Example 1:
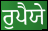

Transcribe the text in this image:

ਰੁਪੈਯੇ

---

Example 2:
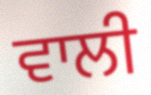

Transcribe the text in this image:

ਵਾਲੀ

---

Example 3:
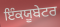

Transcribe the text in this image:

ਇੰਕਯੂਬੇਟਰ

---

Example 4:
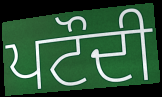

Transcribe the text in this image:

ਪਟੌਦੀ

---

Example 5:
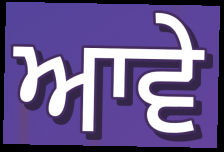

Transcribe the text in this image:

ਆਵੇ